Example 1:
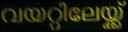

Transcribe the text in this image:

വയറ്റിലേയ്ക്ക്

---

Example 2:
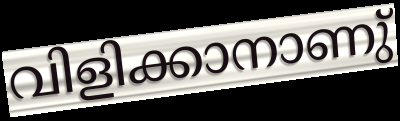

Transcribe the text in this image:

വിളിക്കാനാണു്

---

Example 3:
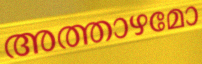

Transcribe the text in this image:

അത്താഴമോ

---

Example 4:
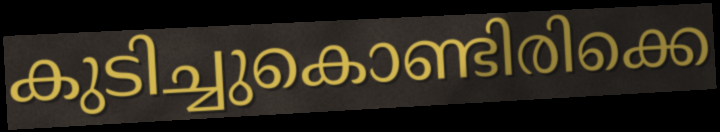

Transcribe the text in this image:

കുടിച്ചുകൊണ്ടിരിക്കെ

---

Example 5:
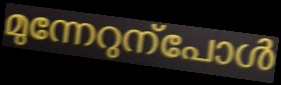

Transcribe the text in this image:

മുന്നേറുന്പോൾ